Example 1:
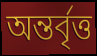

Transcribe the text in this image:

অন্তৰ্বৃত্ত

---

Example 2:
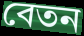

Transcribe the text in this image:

বেতন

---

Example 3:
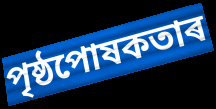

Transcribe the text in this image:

পৃষ্ঠপোষকতাৰ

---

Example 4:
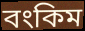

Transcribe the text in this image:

বংকিম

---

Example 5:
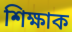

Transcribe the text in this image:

শিক্ষাক